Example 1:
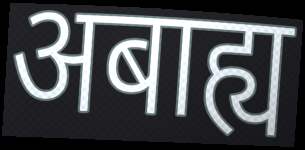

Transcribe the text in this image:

अबाह्य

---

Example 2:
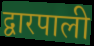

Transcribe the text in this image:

द्वारपाली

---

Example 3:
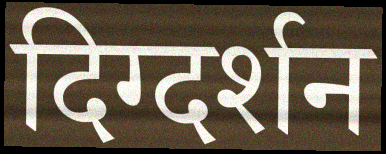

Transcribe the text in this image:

दिग्दर्शन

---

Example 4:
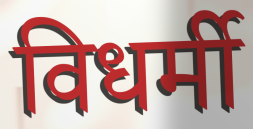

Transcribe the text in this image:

विधर्मी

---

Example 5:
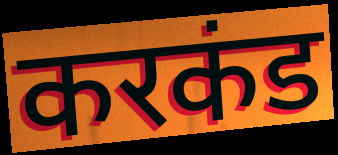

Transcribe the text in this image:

करकंड